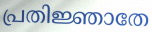
പ്രതിജ്ഞാതേ